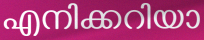
എനിക്കറിയാ